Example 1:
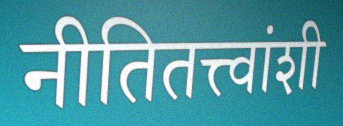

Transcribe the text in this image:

नीतितत्त्वांशी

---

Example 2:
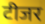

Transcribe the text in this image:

टीजर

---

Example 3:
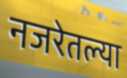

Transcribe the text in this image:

नजरेतल्या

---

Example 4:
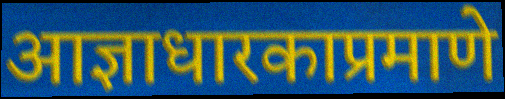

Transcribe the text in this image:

आज्ञाधारकाप्रमाणे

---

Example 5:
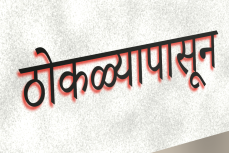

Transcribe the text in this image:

ठोकळ्यापासून